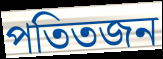
পতিতজন